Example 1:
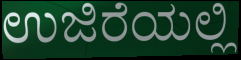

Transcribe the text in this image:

ಉಜಿರೆಯಲ್ಲಿ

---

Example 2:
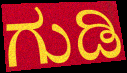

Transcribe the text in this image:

ಗುಡಿ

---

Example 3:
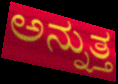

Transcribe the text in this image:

ಅನ್ನುತ್ತ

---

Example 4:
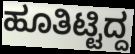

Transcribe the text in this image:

ಹೂತಿಟ್ಟಿದ್ದ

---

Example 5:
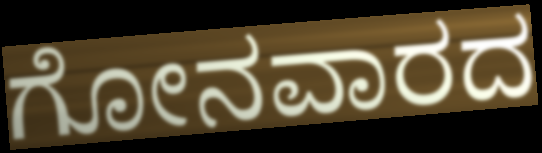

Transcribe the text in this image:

ಗೋನವಾರದ